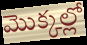
మొక్కల్లో